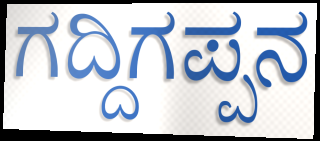
ಗದ್ದಿಗಪ್ಪನ